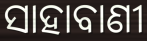
ସାହାବାଣୀ